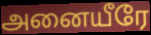
அனையீரே